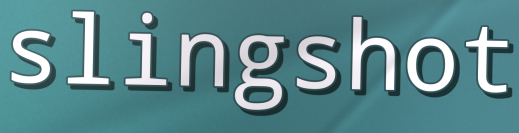
slingshot